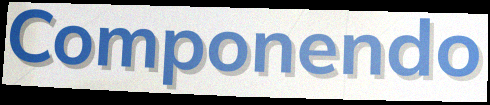
Componendo